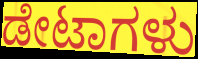
ಡೇಟಾಗಳು